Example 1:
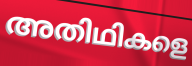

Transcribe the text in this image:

അതിഥികളെ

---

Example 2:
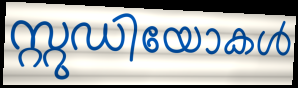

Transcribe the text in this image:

സ്റ്റുഡിയോകൾ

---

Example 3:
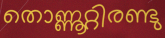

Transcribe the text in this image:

തൊണ്ണൂറ്റിരണ്ടു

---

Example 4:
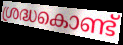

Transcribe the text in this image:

ശ്രദ്ധകൊണ്ട്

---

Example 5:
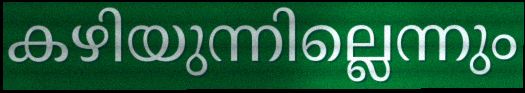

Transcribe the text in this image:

കഴിയുന്നില്ലെന്നും